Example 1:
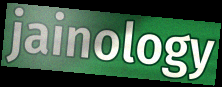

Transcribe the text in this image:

jainology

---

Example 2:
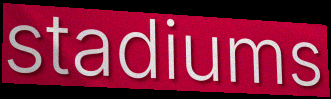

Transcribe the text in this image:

stadiums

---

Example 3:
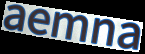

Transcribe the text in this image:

aemna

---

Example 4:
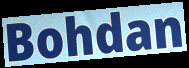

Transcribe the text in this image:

Bohdan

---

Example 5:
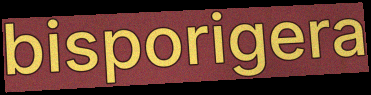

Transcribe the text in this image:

bisporigera